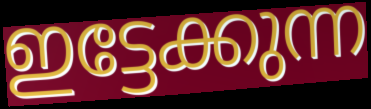
ഇട്ടേക്കുന്ന